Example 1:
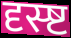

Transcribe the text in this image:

दृस्ष्ट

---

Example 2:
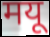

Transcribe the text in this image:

मयू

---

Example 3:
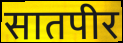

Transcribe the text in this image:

सातपीर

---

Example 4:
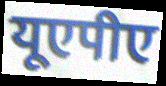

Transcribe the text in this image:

यूएपीए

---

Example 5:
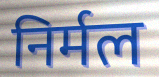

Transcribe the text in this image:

निर्मल